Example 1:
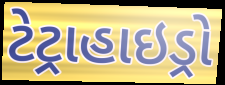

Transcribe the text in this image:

ટેટ્રાહાઇડ્રો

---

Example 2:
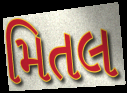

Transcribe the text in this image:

મિતલ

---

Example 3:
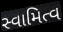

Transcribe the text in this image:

સ્વામિત્વ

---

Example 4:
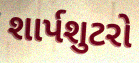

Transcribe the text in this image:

શાર્પશુટરો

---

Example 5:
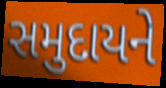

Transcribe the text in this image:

સમુદાયને